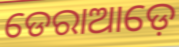
ଡେରାଆଡ଼େ